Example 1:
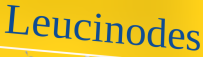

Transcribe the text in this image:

Leucinodes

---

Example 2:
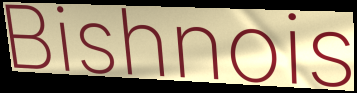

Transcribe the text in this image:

Bishnois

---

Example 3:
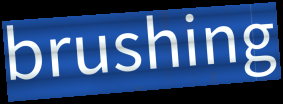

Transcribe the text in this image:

brushing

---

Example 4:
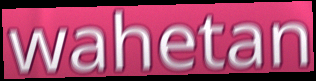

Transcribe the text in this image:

wahetan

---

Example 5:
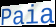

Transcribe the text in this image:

Paia